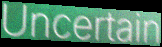
Uncertain